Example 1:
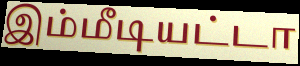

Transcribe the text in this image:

இம்மீடியட்டா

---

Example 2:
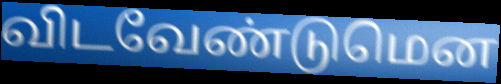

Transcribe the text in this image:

விடவேண்டுமென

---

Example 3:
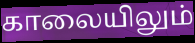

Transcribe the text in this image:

காலையிலும்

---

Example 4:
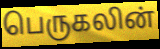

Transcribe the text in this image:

பெருகலின்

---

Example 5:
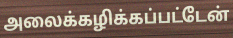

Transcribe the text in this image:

அலைக்கழிக்கப்பட்டேன்